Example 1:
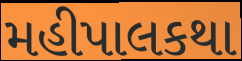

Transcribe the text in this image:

મહીપાલકથા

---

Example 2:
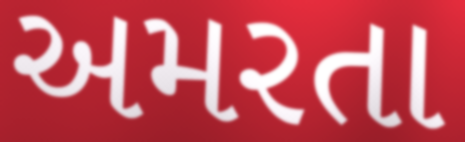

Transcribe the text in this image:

અમરતા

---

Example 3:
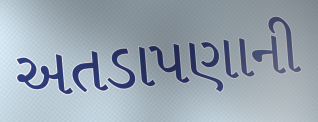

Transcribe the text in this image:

અતડાપણાની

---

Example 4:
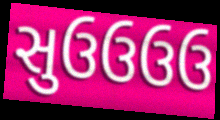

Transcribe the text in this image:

સુઉઉઉઉ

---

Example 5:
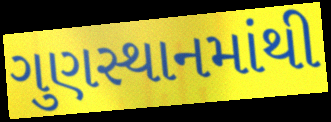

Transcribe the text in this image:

ગુણસ્થાનમાંથી